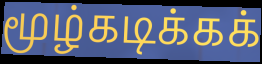
மூழ்கடிக்கக்